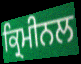
ਕ੍ਰਿਮੀਨਲ